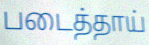
படைத்தாய்